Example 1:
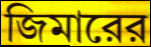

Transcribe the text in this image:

জিমারের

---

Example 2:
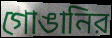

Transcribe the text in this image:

গোঙানির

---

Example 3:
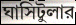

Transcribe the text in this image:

ঘাসিটুলার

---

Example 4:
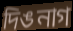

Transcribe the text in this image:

দিঙনাগ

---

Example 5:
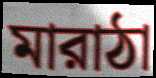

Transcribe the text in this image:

মারাঠা